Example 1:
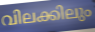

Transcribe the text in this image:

വിലക്കിലും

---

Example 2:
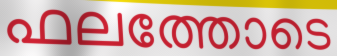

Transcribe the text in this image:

ഫലത്തോടെ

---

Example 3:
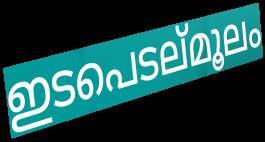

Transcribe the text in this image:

ഇടപെടല്മൂലം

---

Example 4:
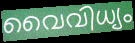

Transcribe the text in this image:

വൈവിധ്യം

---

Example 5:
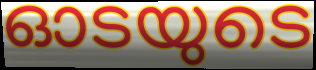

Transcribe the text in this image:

ഓടയുടെ